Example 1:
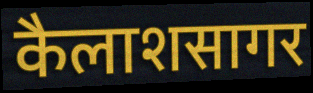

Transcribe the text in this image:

कैलाशसागर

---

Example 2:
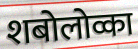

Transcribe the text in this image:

शबोलोव्का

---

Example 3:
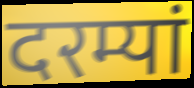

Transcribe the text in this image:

दरम्यां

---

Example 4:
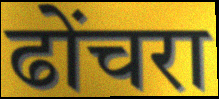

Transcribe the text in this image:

ढोंचरा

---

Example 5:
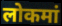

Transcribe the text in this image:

लोकमां